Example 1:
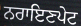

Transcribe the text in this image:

ਨਰਾਇਣਪੇਟ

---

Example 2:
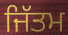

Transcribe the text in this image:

ਜਿੱਤਮ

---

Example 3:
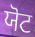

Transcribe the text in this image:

ਯੋਟ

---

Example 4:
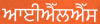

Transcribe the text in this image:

ਆਈਐੱਲਐੱਸ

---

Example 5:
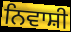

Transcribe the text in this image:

ਨਿਵਾਸ਼ੀ